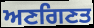
ਅਣਗਿਣਤ